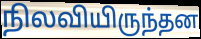
நிலவியிருந்தன